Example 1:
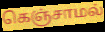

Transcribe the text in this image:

கெஞ்சாமல்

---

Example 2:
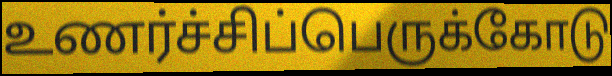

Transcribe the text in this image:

உணர்ச்சிப்பெருக்கோடு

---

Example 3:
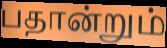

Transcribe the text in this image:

பதான்றும்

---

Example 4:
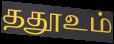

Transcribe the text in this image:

ததூஉம்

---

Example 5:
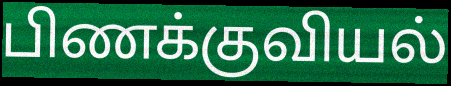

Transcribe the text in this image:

பிணக்குவியல்